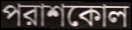
পরাশকোল